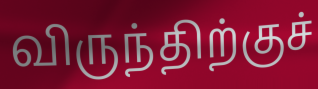
விருந்திற்குச்